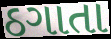
ઠગાતા